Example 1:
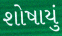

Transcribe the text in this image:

શોષાયું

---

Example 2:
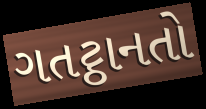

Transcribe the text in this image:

ગતટ્ઠાનતો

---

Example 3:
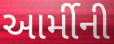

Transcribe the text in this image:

આર્મીની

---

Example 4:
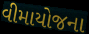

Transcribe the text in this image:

વીમાયોજના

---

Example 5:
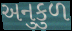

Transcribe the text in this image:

અનુકુળ